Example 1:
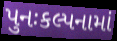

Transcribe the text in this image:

પુનઃકલ્પનામાં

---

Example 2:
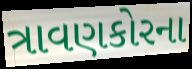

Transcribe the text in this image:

ત્રાવણકોરના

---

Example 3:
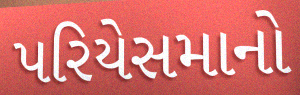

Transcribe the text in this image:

પરિયેસમાનો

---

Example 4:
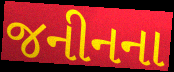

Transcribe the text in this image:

જનીનના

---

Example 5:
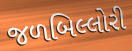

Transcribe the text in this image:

જળબિલ્લોરી